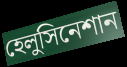
হেলুসিনেশান